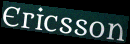
Ericsson